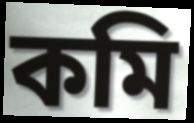
কমি